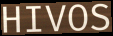
HIVOS